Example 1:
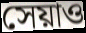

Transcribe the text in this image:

সেয়াও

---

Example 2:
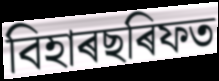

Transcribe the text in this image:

বিহাৰছৰিফত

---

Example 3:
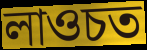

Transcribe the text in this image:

লাওচত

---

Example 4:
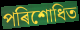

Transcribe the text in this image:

পৰিশোধিত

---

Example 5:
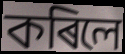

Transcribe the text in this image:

কৰিলে